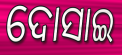
ଦୋସାଇ